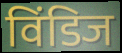
विंडिज